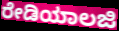
ರೇಡಿಯಾಲಜಿ